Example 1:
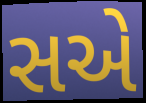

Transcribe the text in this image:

સએ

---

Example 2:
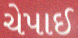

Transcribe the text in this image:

ચેપાઈ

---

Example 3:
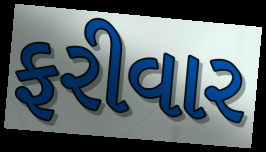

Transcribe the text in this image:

ફરીવાર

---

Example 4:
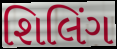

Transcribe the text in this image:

શિલિંગ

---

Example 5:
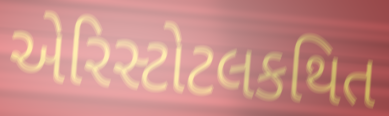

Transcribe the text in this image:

એરિસ્ટોટલકથિત